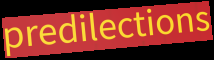
predilections